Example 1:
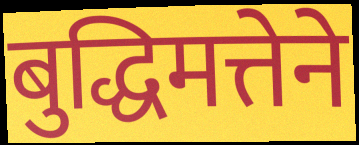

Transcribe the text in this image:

बुद्धिमत्तेने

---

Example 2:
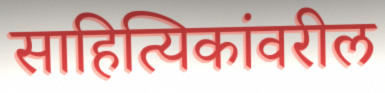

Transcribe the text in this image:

साहित्यिकांवरील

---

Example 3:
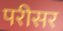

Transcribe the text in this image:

परीसर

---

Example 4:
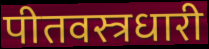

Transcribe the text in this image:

पीतवस्त्रधारी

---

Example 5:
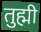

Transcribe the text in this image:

तुह्मी